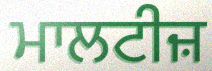
ਮਾਲਟੀਜ਼